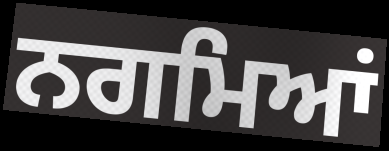
ਨਗਮਿਆਂ